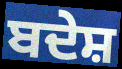
ਬਦੇਸ਼